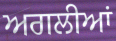
ਅਗਲੀਆਂ